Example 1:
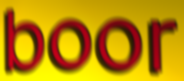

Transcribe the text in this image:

boor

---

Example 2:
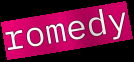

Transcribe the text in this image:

romedy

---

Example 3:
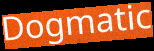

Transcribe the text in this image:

Dogmatic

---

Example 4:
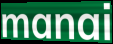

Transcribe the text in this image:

manai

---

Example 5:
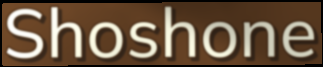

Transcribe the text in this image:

Shoshone